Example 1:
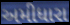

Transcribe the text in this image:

અમીધારા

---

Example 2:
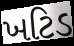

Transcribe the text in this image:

ખટિડ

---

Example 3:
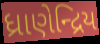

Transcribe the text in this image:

ધ્રાણેન્દ્રિય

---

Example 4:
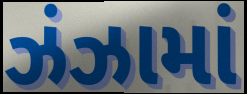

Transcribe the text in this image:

ઝંઝામાં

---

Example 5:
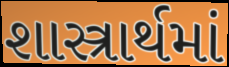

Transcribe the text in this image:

શાસ્ત્રાર્થમાં